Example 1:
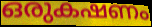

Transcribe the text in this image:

ഒരുകഷണം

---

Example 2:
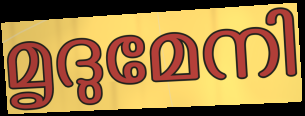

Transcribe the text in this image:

മൃദുമേനി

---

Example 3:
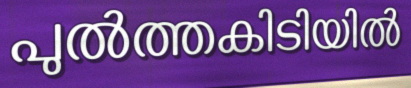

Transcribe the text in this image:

പുൽത്തകിടിയിൽ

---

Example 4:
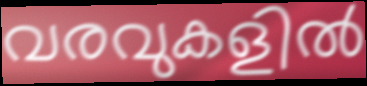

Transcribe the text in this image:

വരവുകളിൽ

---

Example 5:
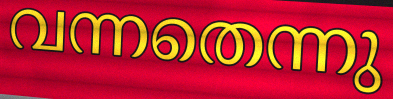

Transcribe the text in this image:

വന്നതെന്നു